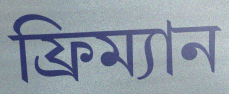
ফ্রিম্যান